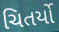
ચિતર્યો